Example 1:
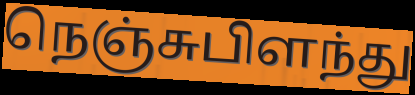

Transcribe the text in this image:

நெஞ்சுபிளந்து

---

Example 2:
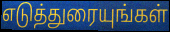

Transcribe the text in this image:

எடுத்துரையுங்கள்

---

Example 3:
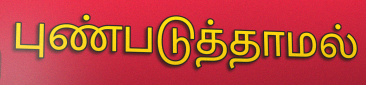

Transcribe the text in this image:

புண்படுத்தாமல்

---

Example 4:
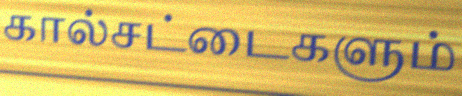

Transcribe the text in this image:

கால்சட்டைகளும்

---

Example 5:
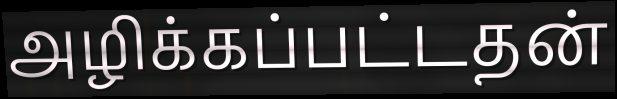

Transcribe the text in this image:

அழிக்கப்பட்டதன்